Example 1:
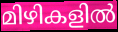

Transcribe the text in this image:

മിഴികളിൽ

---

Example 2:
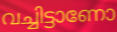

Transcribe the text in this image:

വച്ചിട്ടാണോ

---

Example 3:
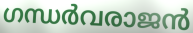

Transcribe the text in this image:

ഗന്ധർവരാജൻ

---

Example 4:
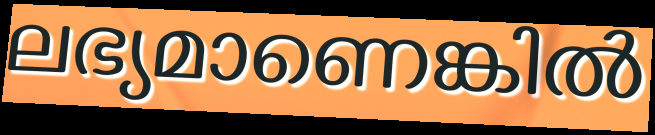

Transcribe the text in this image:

ലഭ്യമാണെങ്കിൽ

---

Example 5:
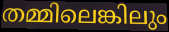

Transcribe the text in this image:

തമ്മിലെങ്കിലും